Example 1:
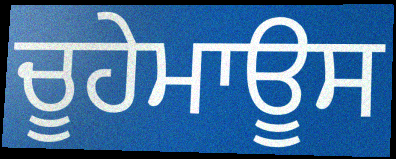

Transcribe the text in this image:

ਚੂਹੇਮਾਊਸ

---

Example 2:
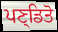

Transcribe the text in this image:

ਪਣ੍ਡਿਤੋ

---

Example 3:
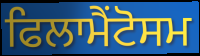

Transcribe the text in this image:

ਫਿਲਾਮੈਂਟੋਸਮ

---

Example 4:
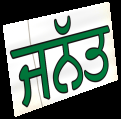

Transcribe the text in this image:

ਜਨੱਤ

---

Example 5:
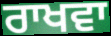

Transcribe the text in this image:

ਰਾਖਵਾ